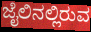
ಜೈಲಿನಲ್ಲಿರುವ